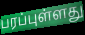
பரப்புள்ளது